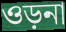
ওড়না